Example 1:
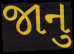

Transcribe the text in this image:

જાનુ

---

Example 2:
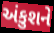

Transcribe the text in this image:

અંકુશને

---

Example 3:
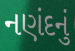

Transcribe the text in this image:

નણંદનું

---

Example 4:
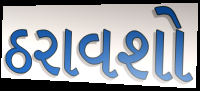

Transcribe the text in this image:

ઠરાવશો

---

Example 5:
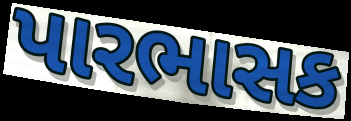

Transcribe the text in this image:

પારભાસક